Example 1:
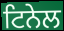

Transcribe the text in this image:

ਟਿਨੇਲ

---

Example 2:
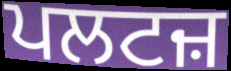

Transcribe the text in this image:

ਪਲਟਜ਼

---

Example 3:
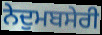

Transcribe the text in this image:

ਨੇਦੁਮਬਸੇਰੀ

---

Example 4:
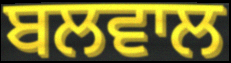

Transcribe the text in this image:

ਬਲਵਾਲ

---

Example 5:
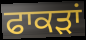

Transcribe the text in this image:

ਫਾਕੜਾਂ